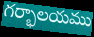
గర్భాలయము